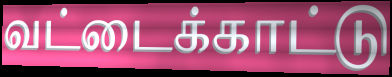
வட்டைக்காட்டு